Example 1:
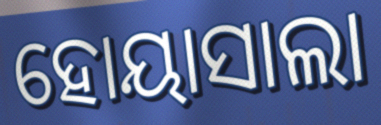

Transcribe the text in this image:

ହୋୟାସାଲା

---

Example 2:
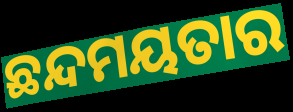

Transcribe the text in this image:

ଛନ୍ଦମୟତାର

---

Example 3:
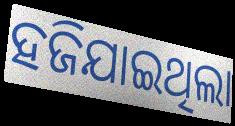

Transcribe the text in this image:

ହଜିଯାଇଥିଲା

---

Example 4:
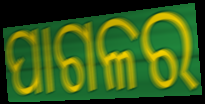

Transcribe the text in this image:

ପାଗଳର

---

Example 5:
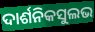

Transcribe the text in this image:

ଦାର୍ଶନିକସୁଲଭ